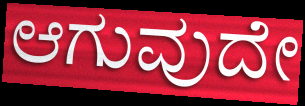
ಆಗುವುದೇ